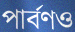
পার্বণও